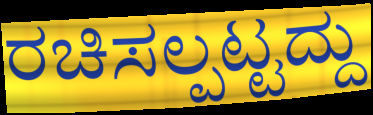
ರಚಿಸಲ್ಪಟ್ಟದ್ದು